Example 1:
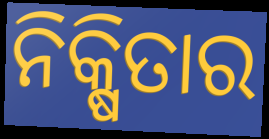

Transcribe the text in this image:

ନିକ୍ଷିତାର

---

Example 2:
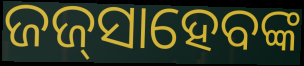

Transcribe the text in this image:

ଜଜ୍‌ସାହେବଙ୍କ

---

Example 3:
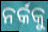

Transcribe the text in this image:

ନର୍କକୁ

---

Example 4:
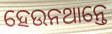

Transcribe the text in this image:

ହେଉନଥାନ୍ତେ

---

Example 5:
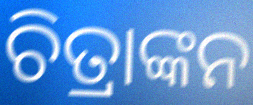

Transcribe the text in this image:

ଚିତ୍ରାଙ୍କନ